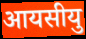
आयसीयु